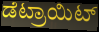
ಡೆಟ್ರಾಯಿಟ್